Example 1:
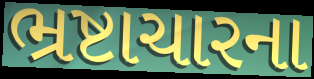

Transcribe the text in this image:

ભ્રષ્ટાચારના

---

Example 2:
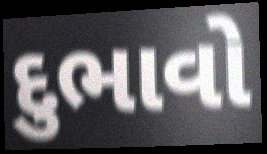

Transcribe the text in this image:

દુભાવો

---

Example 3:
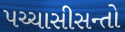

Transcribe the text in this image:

પચ્ચાસીસન્તો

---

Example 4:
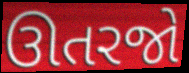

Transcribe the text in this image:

ઊતરજો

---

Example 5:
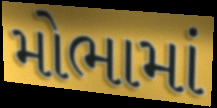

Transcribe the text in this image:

મોભામાં